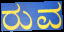
ರುವ